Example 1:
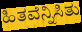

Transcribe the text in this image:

ಹಿತವೆನ್ನಿಸಿತು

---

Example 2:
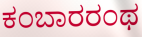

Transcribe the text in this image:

ಕಂಬಾರರಂಥ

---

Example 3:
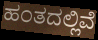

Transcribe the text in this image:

ಹಂತದಲ್ಲಿವೆ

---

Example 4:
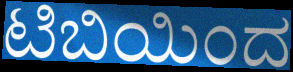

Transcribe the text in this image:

ಟಿಬಿಯಿಂದ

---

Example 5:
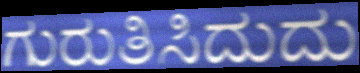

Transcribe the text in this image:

ಗುರುತಿಸಿದುದು